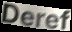
Deref